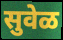
सुवेळ